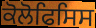
ਕੋਲੋਫਿਸਿਸ